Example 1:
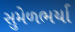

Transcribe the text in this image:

સુમેળભર્યા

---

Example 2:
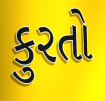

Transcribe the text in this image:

કુરતો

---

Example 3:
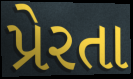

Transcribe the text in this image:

પ્રેરતા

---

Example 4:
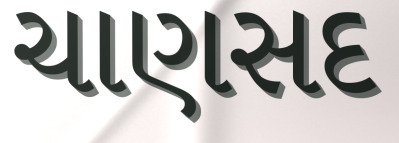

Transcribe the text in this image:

ચાણસદ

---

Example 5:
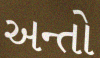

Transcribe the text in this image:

અન્તો